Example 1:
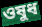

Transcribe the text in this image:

ওষুধ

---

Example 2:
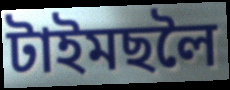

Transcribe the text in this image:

টাইমছলৈ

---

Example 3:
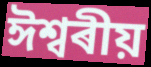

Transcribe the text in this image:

ঈশ্বৰীয়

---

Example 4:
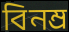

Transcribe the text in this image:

বিনম্ৰ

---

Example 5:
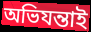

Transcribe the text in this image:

অভিযন্তাই